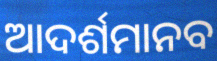
ଆଦର୍ଶମାନବ